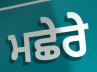
ਮਛੇਰੇ